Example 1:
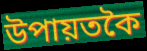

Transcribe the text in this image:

উপায়তকৈ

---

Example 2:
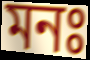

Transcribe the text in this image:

মনঃ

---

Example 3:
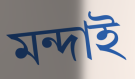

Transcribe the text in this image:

মন্দাই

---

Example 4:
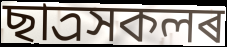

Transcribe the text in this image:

ছাত্ৰসকলৰ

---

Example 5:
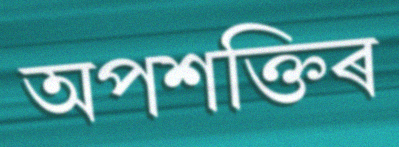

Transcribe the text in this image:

অপশক্তিৰ